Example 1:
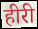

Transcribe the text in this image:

हीरी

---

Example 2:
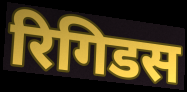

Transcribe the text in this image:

रिगिडस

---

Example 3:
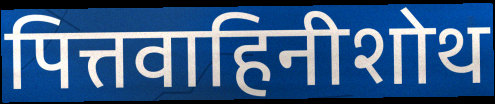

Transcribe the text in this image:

पित्तवाहिनीशोथ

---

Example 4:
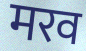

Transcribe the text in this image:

मरव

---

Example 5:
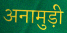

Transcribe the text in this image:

अनामुड़ी